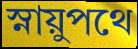
স্নায়ুপথে